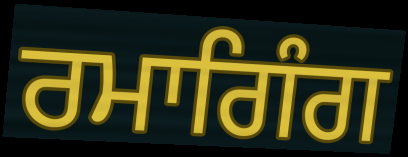
ਰਮਾਗਿੰਗ